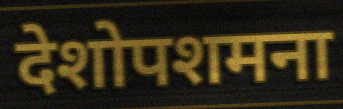
देशोपशमना